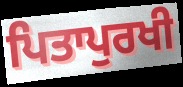
ਪਿਤਾਪੁਰਖੀ